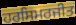
ਹਰਸਿਮਰਜੀਤ